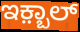
ಇಕ಼್ಬಾಲ್